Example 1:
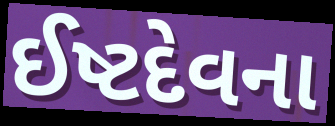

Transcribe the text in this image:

ઈષ્ટદેવના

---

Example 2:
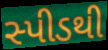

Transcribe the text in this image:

સ્પીડથી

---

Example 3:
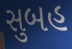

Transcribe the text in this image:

સુબહ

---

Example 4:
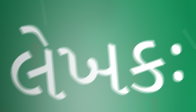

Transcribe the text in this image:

લેખકઃ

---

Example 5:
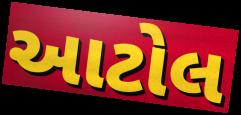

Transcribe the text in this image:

આટોલ